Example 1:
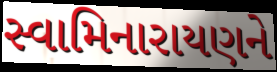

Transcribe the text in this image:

સ્વામિનારાયણને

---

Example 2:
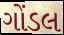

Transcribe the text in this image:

ગોંડલ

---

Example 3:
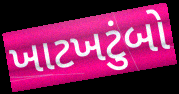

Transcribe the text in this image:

ખાટખટુંબો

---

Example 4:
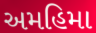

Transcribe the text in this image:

અમહિમા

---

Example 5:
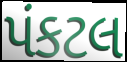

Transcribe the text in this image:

પંકટલ